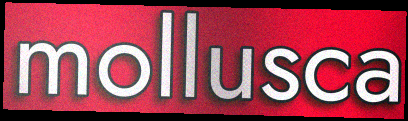
mollusca